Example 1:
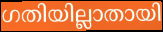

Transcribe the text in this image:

ഗതിയില്ലാതായി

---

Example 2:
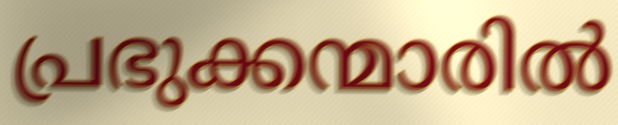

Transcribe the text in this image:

പ്രഭുക്കന്മാരിൽ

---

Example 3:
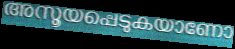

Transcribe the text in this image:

അസൂയപ്പെടുകയാണോ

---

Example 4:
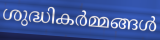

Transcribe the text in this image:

ശുദ്ധികർമ്മങ്ങൾ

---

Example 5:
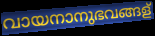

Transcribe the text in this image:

വായനാനുഭവങ്ങള്